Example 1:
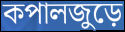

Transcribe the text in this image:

কপালজুড়ে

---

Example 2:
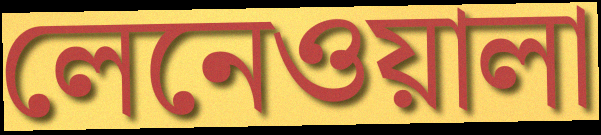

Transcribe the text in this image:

লেনেওয়ালা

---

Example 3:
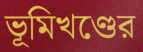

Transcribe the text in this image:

ভূমিখণ্ডের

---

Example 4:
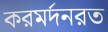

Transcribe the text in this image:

করমর্দনরত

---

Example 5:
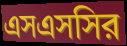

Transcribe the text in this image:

এসএসসির